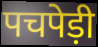
पचपेड़ी